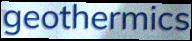
geothermics